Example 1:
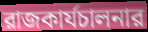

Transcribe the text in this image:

রাজকার্যচালনার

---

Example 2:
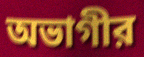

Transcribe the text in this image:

অভাগীর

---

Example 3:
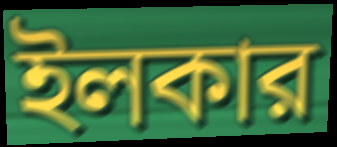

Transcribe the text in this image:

ইলকার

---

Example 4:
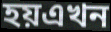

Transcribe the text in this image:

হয়এখন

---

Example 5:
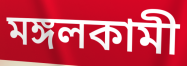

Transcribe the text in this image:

মঙ্গলকামী